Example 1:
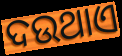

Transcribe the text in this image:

ଦଉଥାଏ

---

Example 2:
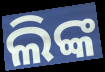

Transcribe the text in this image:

ଲିଙ୍କ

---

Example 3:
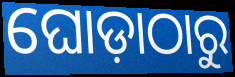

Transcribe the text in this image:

ଘୋଡ଼ାଠାରୁ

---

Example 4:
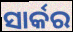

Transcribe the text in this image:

ସାର୍କର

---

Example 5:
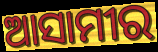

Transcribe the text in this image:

ଆସାମୀର